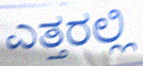
ಎತ್ತರಲ್ಲಿ